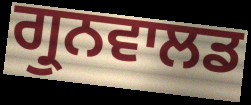
ਗ੍ਰੁਨਵਾਲਡ